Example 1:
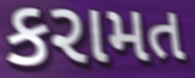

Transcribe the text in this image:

કરામત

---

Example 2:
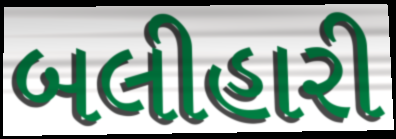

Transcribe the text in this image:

બલીહારી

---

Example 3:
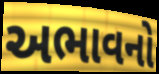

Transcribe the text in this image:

અભાવનો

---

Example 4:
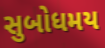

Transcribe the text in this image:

સુબોધમય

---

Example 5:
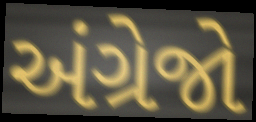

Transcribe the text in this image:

અંગ્રેજો